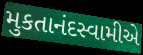
મુકતાનંદસ્વામીએ